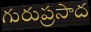
గురుప్రసాద